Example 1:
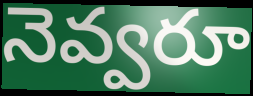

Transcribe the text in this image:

నెవ్వరూ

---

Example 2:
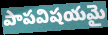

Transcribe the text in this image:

పాపవిషయమై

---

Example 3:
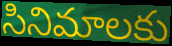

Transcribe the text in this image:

సినిమాలకు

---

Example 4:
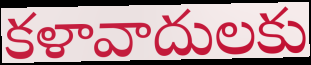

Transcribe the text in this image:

కళావాదులకు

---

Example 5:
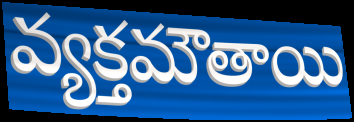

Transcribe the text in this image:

వ్యక్తమౌతాయి